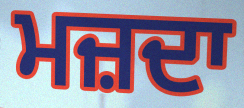
ਮਜ਼ਦਾ